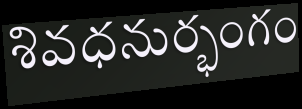
శివధనుర్భంగం